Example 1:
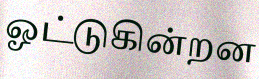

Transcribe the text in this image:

ஓட்டுகின்றன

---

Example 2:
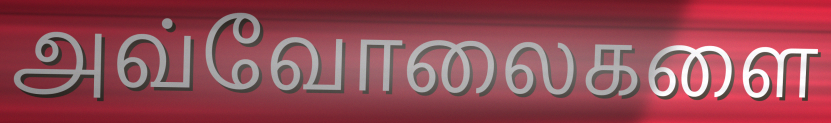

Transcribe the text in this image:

அவ்வோலைகளை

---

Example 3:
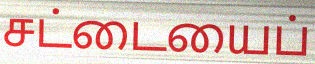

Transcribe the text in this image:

சட்டையைப்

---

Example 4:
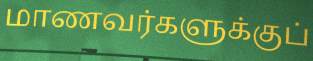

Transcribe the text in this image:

மாணவர்களுக்குப்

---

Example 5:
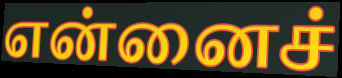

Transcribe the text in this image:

என்னைச்